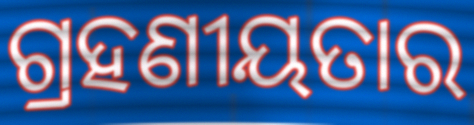
ଗ୍ରହଣୀୟତାର